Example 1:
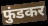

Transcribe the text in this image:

फुंडकर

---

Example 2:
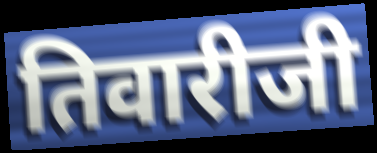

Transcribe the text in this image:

तिवारीजी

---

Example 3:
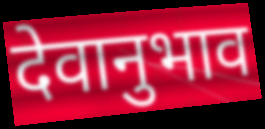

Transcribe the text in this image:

देवानुभाव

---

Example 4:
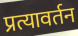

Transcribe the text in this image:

प्रत्यावर्तन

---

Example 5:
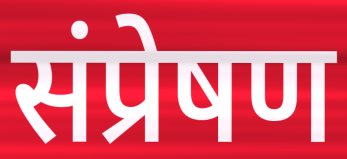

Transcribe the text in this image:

संप्रेषण